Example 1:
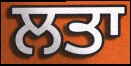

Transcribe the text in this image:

ਲਤਾ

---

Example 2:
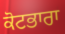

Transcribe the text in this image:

ਕੋਟਭਾਰਾ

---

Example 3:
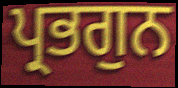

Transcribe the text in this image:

ਪ੍ਰਭਗੁਨ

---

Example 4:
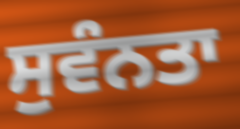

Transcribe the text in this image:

ਸੁਵੰਨਤਾ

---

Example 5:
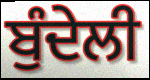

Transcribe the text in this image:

ਬੁੰਦੇਲੀ